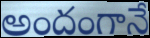
అందంగానే